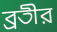
ব্রতীর